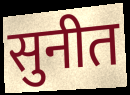
सुनीत